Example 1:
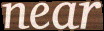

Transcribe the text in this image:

near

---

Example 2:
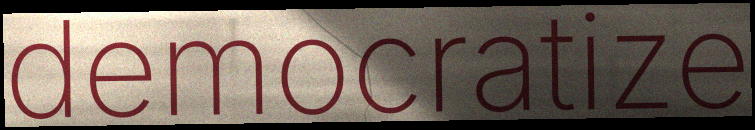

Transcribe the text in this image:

democratize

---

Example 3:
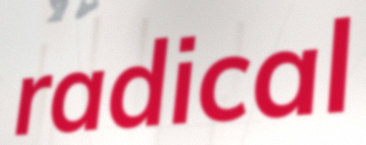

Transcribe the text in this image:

radical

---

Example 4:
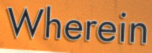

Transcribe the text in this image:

Wherein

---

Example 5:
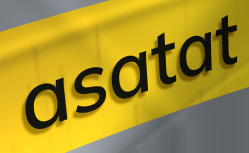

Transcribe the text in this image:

asatat